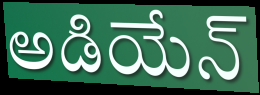
అడియేన్